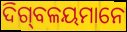
ଦିଗ୍‌ବଳୟମାନେ